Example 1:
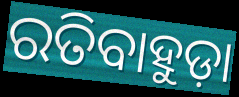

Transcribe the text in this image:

ରତିବାହୁଡ଼ା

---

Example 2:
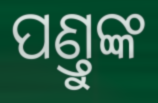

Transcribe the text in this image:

ପଣ୍ତୁଙ୍କ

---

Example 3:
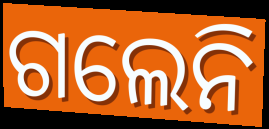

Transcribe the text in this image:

ଗଲେନି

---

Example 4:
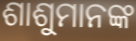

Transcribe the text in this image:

ଶାଶୁମାନଙ୍କ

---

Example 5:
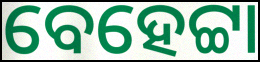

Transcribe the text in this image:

ବେହେଟ୍ଟା